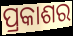
ପ୍ରକାଶର